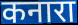
कनारा